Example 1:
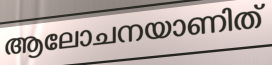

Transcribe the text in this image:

ആലോചനയാണിത്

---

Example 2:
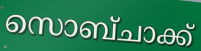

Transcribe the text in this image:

സൊബ്ചാക്ക്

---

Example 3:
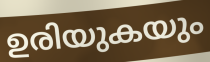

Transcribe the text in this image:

ഉരിയുകയും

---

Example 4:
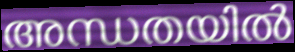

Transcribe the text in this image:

അന്ധതയിൽ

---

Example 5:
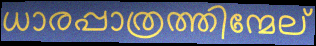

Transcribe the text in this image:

ധാരപ്പാത്രത്തിന്മേല്